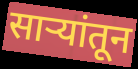
साऱ्यांतून